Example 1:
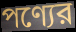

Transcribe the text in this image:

পণ্যের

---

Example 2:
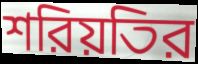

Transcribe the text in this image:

শরিয়তির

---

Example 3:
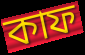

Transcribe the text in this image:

কাফ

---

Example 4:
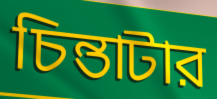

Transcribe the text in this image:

চিন্তাটার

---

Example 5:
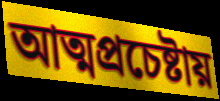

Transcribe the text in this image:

আত্মপ্রচেষ্টায়